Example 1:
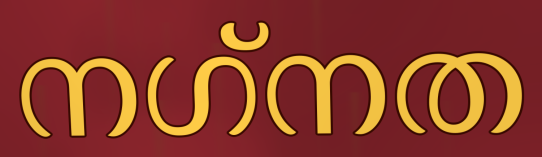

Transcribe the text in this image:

നഗ്‌നത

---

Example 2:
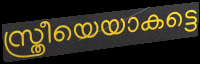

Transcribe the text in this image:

സ്ത്രീയെയാകട്ടെ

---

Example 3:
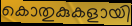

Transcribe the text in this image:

കൊതുകുകളായി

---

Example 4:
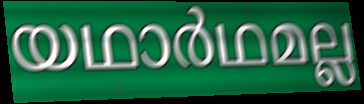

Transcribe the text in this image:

യഥാർഥമല്ല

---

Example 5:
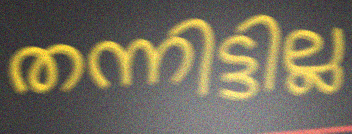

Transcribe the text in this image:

തന്നിട്ടില്ല